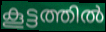
കൂട്ടത്തിൽ